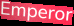
Emperor